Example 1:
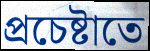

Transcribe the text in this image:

প্রচেষ্টাতে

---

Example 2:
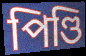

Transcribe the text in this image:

পিণ্ডি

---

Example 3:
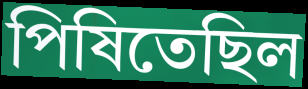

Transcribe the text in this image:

পিষিতেছিল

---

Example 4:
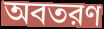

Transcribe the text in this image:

অবতরণ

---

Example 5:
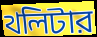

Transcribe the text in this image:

থলিটার